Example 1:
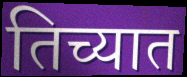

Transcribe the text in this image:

तिच्यात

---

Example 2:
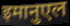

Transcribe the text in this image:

इमानुएल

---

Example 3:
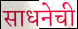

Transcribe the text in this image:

साधनेची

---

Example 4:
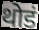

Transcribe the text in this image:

थोडं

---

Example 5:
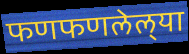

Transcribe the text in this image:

फणफणलेल्या